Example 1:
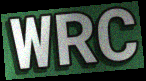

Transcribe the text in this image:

WRC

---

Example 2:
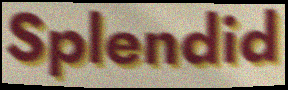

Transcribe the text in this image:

Splendid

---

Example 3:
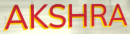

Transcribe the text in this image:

AKSHRA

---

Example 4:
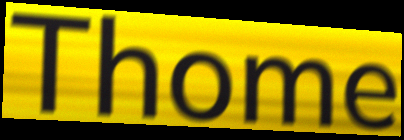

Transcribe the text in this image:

Thome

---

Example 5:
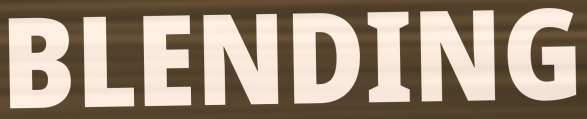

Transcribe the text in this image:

BLENDING